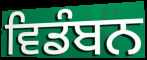
ਵਿਡੰਬਨ